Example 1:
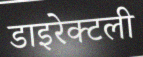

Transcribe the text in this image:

डाइरेक्टली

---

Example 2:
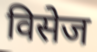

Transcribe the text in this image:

विसेज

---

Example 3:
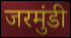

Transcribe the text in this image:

जरमुंडी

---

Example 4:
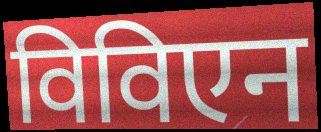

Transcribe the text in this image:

विविएन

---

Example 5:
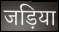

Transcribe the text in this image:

जड़िया